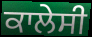
ਕਾਲੇਸੀ